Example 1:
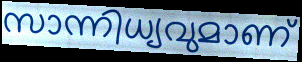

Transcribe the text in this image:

സാന്നിധ്യവുമാണ്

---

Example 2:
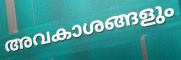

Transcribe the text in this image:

അവകാശങ്ങളും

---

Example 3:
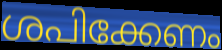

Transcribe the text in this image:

ശപിക്കേണം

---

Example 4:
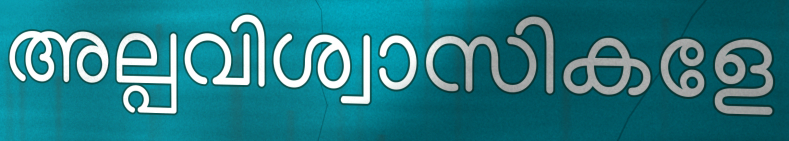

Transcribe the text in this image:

അല്പവിശ്വാസികളേ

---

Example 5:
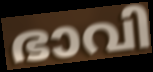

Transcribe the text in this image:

ഭാവി